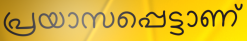
പ്രയാസപ്പെട്ടാണ്